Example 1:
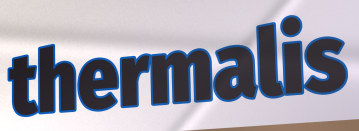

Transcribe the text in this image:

thermalis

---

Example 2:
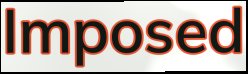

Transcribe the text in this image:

Imposed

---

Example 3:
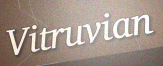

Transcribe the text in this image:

Vitruvian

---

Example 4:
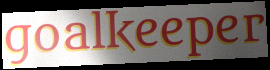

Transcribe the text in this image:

goalkeeper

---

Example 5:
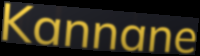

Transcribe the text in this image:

Kannane